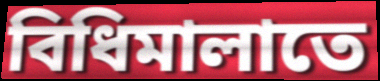
বিধিমালাতে